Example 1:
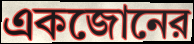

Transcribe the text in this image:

একজোনের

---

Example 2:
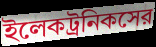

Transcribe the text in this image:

ইলেকট্রনিকসের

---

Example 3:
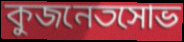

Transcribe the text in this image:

কুজনেতসোভ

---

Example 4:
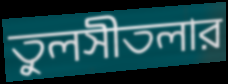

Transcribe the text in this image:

তুলসীতলার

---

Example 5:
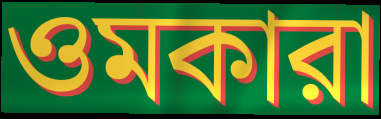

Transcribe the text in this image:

ওমকারা